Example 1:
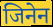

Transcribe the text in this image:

जिनेन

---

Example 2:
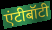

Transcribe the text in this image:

एंटीबॉटी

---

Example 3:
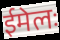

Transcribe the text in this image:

ईमेलः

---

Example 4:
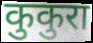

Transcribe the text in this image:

कुकुरा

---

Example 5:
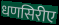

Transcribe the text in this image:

धणसिरीए